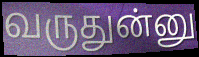
வருதுன்னு